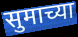
सुमाच्या